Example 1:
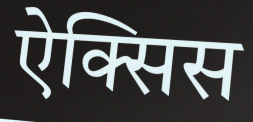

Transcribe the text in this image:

ऐक्सिस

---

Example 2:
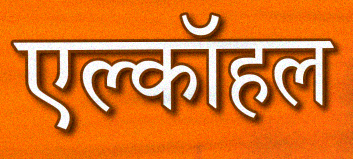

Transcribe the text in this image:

एल्कॉहल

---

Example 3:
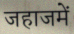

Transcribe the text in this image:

जहाजमें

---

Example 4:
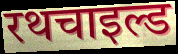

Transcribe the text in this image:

रथचाइल्ड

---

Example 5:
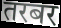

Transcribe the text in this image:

तरबर